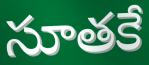
సూతకే